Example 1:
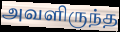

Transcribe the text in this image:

அவளிருந்த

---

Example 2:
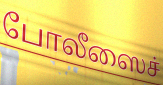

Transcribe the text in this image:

போலீஸைச்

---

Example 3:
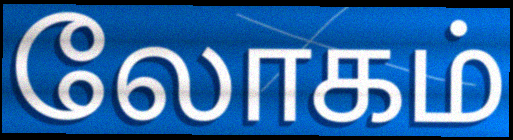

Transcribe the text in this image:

லோகம்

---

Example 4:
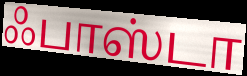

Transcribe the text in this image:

ஃபாஸ்டா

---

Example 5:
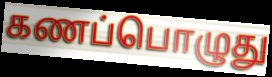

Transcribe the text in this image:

கணப்பொழுது